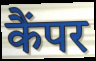
कैंपर